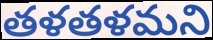
తళతళమని